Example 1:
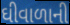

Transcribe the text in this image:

ઘીવાળાની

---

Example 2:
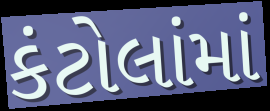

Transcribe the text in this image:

કંટોલાંમાં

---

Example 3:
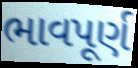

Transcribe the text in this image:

ભાવપૂર્ણ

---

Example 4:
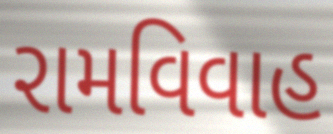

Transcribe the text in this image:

રામવિવાહ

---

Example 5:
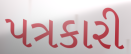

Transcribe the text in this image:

પત્રકારી